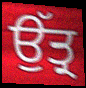
ਉੱਤ੍ਰ